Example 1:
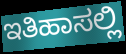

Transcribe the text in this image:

ಇತಿಹಾಸಲ್ಲಿ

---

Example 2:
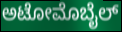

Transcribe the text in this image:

ಅಟೋಮೊಬೈಲ್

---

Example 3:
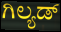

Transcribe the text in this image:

ಗಿಲ್ಯಡ್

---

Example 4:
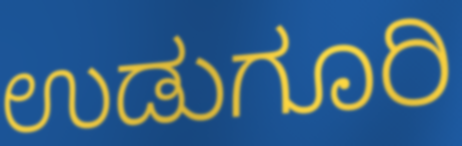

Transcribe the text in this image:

ಉಡುಗೂರಿ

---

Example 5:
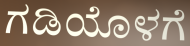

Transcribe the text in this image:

ಗಡಿಯೊಳಗೆ